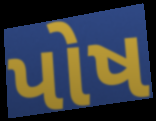
પોષ